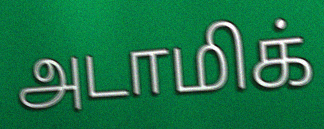
அடாமிக்